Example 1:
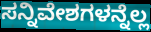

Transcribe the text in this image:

ಸನ್ನಿವೇಶಗಳನ್ನೆಲ್ಲ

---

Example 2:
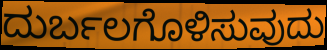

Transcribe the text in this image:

ದುರ್ಬಲಗೊಳಿಸುವುದು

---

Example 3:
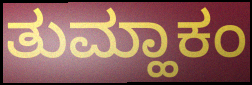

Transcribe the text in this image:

ತುಮ್ಹಾಕಂ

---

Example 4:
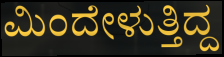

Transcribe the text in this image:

ಮಿಂದೇಳುತ್ತಿದ್ದ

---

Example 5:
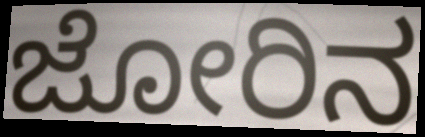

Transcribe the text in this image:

ಜೋರಿನ